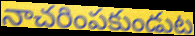
నాచరింపకుండుట